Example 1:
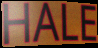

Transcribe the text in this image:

HALE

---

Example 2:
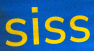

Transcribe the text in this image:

siss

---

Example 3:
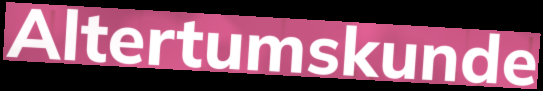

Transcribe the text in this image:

Altertumskunde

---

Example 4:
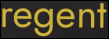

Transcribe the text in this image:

regent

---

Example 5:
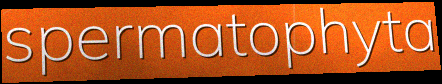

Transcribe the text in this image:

spermatophyta